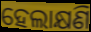
ହେଲାକ୍ଷଣି